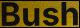
Bush